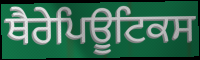
ਥੈਰੇਪਿਊਟਿਕਸ